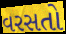
વરસતો